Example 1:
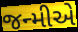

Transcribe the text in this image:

જન્મીએ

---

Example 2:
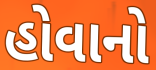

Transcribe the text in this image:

હોવાનો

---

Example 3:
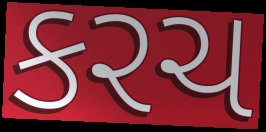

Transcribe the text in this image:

કરચ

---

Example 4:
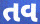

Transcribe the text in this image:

તવ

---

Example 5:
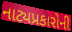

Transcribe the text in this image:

નાટ્યપ્રકારોની